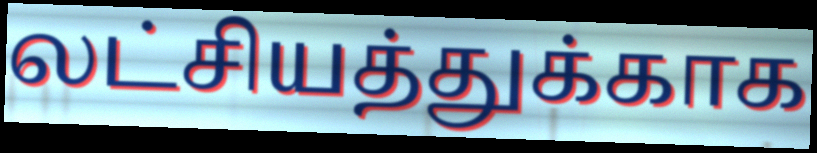
லட்சியத்துக்காக